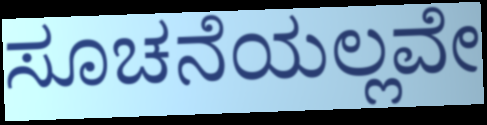
ಸೂಚನೆಯಲ್ಲವೇ